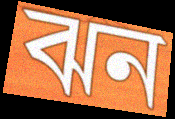
ঝন